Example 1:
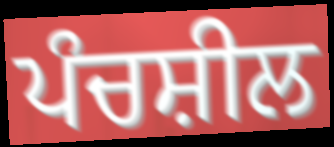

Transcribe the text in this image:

ਪੰਚਸ਼ੀਲ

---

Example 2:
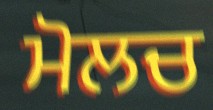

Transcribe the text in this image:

ਮੋਲਚ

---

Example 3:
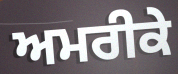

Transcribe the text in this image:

ਅਮਰੀਕੇ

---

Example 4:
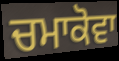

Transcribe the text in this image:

ਚਮਾਕੋਵਾ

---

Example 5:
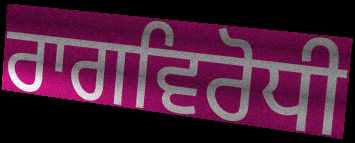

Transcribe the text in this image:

ਰਾਗਵਿਰੋਧੀ